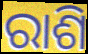
ରାଶି